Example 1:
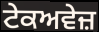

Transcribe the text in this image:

ਟੇਕਅਵੇਜ਼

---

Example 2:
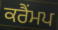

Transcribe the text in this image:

ਕਰੈਂਮਪ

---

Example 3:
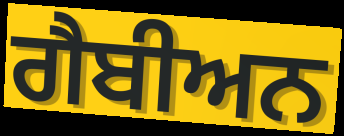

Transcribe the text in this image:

ਗੈਬੀਅਨ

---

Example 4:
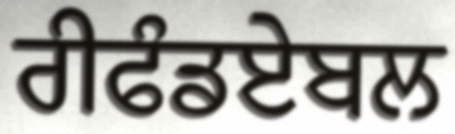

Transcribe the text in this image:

ਰੀਫੰਡਏਬਲ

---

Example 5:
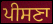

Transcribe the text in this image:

ਪੀਸਣਾ